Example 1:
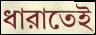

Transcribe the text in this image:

ধারাতেই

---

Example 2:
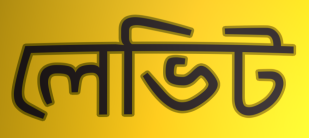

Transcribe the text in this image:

লেভিট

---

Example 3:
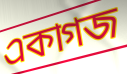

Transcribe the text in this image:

একাগজ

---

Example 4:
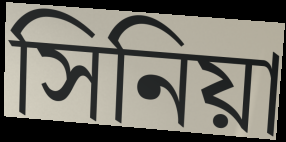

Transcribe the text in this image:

সিনিয়া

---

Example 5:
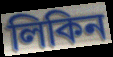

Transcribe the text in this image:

লিকিন